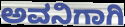
ಅವನಿಗಾಗಿ